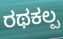
ರಥಕಲ್ಪ